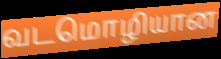
வடமொழியான